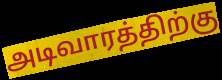
அடிவாரத்திற்கு